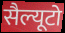
सैल्यूटो